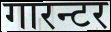
गारन्टर